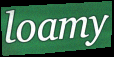
loamy